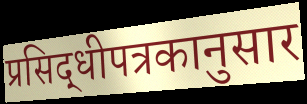
प्रसिद्धीपत्रकानुसार